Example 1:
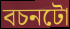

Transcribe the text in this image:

বচনটো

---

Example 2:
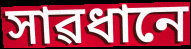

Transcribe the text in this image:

সাৱধানে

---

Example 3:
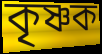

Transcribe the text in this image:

কৃষ্ণক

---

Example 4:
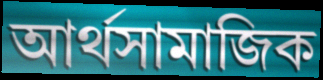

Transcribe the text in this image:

আৰ্থসামাজিক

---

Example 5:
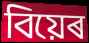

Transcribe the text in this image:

বিয়েৰ